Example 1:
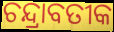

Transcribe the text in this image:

ଚନ୍ଦ୍ରାବତୀକ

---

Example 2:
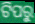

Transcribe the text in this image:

ଟିପରୁ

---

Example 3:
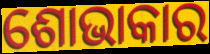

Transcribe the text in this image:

ଶୋଭାକାର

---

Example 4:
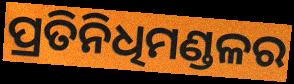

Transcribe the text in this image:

ପ୍ରତିନିଧିମଣ୍ଡଳର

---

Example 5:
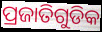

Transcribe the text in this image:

ପ୍ରଜାତିଗୁଡିକ